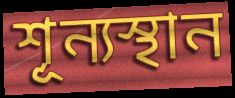
শূন্যস্থান